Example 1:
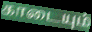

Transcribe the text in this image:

காடையும்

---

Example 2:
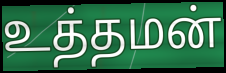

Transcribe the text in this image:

உத்தமன்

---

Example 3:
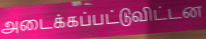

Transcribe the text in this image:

அடைக்கப்பட்டுவிட்டன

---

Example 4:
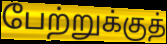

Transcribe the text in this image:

பேற்றுக்குத்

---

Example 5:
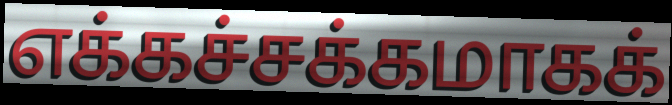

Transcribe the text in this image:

எக்கச்சக்கமாகக்